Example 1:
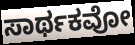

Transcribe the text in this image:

ಸಾರ್ಥಕವೋ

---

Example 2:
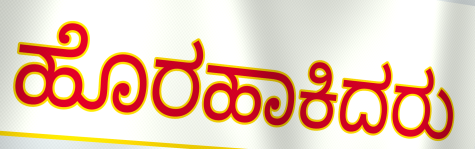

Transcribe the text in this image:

ಹೊರಹಾಕಿದರು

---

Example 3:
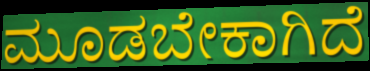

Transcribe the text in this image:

ಮೂಡಬೇಕಾಗಿದೆ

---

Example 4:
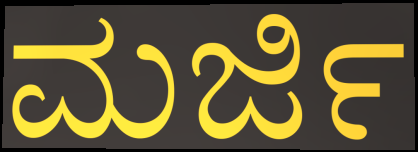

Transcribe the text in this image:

ಮರ್ಜಿ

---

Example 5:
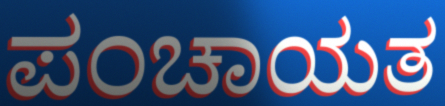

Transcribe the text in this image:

ಪಂಚಾಯತ